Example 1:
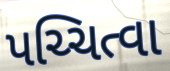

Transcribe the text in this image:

પચ્ચિત્વા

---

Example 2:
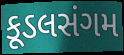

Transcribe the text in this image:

કૂડલસંગમ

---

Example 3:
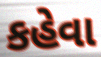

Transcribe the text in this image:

કહેવા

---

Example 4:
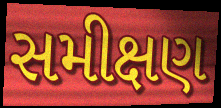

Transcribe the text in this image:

સમીક્ષણ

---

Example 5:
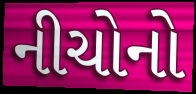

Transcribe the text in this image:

નીચોનો